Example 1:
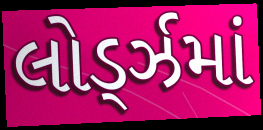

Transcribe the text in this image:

લોર્ડ્ઝમાં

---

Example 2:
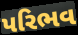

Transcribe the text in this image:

પરિભવ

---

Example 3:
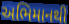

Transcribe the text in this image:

અભિમાનથી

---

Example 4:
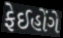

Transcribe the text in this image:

ફેઈહોંગે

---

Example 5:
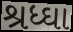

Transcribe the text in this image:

શ્રધ્ઘા